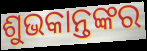
ଶୁଭକାନ୍ତଙ୍କର